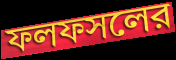
ফলফসলের